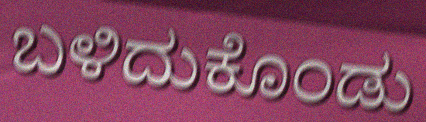
ಬಳಿದುಕೊಂಡು